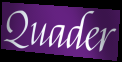
Quader